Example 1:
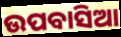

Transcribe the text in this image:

ଉପବାସିଆ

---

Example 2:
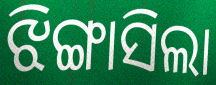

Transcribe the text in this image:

ଝିଙ୍ଗାସିଲା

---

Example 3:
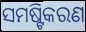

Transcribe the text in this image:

ସମଷ୍ଟିକରଣ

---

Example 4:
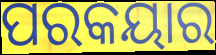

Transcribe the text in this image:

ପରକୟାର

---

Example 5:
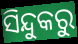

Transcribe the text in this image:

ସିନ୍ଦୁକରୁ